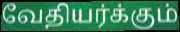
வேதியர்க்கும்